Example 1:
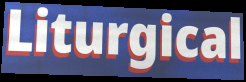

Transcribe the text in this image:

Liturgical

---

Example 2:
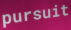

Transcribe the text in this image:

pursuit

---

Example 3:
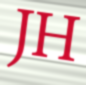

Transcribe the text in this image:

JH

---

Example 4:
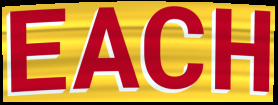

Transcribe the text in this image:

EACH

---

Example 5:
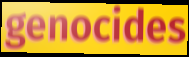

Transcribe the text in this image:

genocides